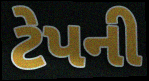
ટેપની